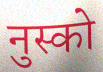
नुस्को